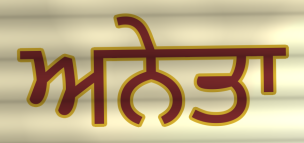
ਅਨੇਤਾ